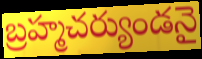
బ్రహ్మచర్యుండనై